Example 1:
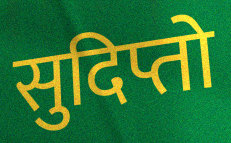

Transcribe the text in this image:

सुदिप्तो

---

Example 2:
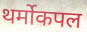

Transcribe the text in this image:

थर्मोकपल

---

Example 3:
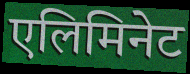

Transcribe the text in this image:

एलिमिनेट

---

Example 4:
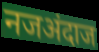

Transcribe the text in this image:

नजअंदाज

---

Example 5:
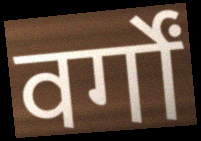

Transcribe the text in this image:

वर्गों